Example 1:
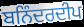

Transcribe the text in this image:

ਬਨਿੰਦਰਦੀਪ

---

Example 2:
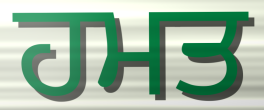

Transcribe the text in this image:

ਹਮਤ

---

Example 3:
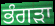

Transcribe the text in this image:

ਭੰਗੜਾ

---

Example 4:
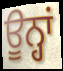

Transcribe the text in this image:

ਊਨ੍ਹਾਂ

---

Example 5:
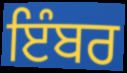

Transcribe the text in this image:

ਇੰਬਰ